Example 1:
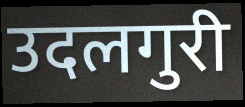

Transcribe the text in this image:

उदलगुरी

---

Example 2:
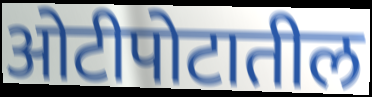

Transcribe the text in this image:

ओटीपोटातील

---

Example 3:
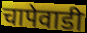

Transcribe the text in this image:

चापेवाडी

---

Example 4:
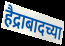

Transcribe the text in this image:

हैद्राबादच्या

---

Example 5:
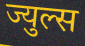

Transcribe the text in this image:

ज्युल्स